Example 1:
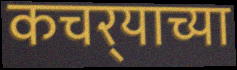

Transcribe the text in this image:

कचर्‍याच्या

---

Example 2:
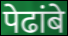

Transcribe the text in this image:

पेढांबे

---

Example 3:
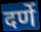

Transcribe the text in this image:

दर्णे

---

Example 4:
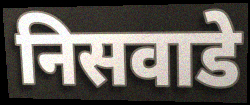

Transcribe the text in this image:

निसवाडे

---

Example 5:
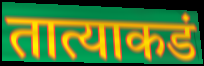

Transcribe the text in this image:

तात्याकडं